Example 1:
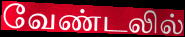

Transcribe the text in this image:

வேண்டலில்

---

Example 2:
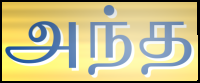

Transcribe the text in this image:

அந்த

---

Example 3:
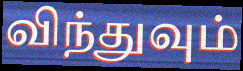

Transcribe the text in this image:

விந்துவும்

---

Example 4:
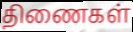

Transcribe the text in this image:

திணைகள்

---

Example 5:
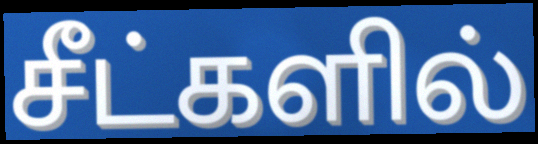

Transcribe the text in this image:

சீட்களில்